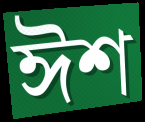
ঈশ